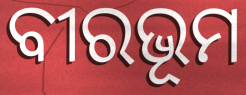
ବୀରଭୂମ